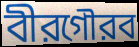
বীরগৌরব